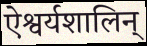
ऐश्वर्यशालिन्